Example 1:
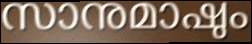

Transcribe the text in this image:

സാനുമാഷും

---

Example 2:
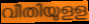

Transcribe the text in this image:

വീതിയുളള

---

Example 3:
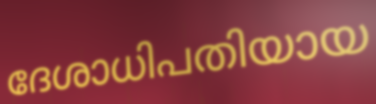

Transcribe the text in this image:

ദേശാധിപതിയായ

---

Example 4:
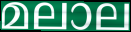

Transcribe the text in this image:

മലാല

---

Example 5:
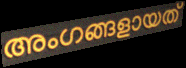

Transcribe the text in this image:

അംഗങ്ങളായത്